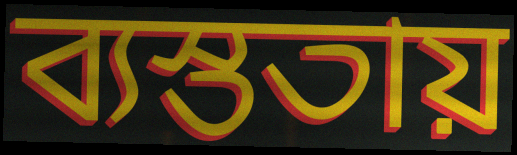
ব্যস্ততায়